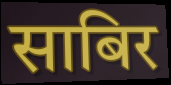
साबिर